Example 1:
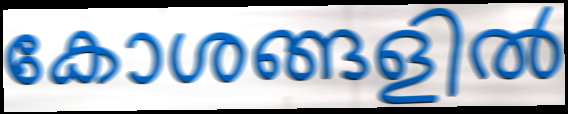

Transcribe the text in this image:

കോശങ്ങളിൽ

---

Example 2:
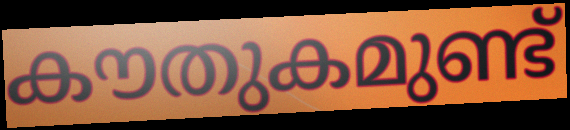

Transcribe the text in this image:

കൗതുകമുണ്ട്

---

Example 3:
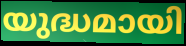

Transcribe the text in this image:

യുദ്ധമായി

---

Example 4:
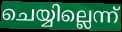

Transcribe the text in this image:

ചെയ്യില്ലെന്ന്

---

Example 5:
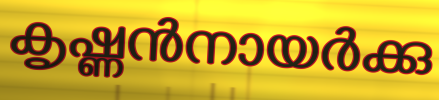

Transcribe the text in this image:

കൃഷ്ണൻനായർക്കു